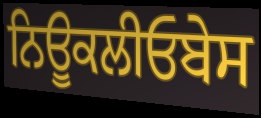
ਨਿਊਕਲੀਓਬੇਸ